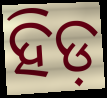
ହିଡ଼